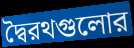
দ্বৈরথগুলোর